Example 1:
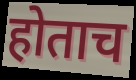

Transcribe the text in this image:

होताच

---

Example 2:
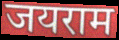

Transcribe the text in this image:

जयराम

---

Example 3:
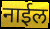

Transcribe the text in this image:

नाईल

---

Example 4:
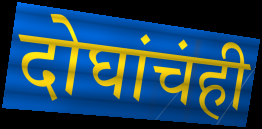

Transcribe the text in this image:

दोघांचंही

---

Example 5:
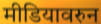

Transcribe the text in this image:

मीडियावरुन